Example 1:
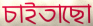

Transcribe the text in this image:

চাইতাছো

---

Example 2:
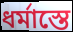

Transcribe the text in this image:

ধর্মাস্তে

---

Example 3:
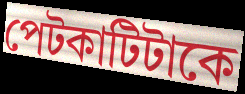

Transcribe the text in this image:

পেটকাটিটাকে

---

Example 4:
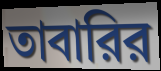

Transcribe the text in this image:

তাবারির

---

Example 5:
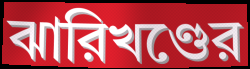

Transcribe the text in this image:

ঝারিখণ্ডের